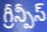
గ్రీన్పీస్